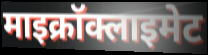
माइक्रॉक्लाइमेट